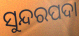
ସୁନ୍ଦରପଦା